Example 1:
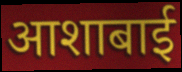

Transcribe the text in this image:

आशाबाई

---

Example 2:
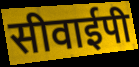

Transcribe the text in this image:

सीवाईपी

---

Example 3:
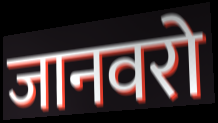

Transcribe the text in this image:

जानवरो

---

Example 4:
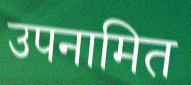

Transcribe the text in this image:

उपनामित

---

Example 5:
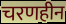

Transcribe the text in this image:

चरणहीन